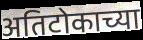
अतिटोकाच्या